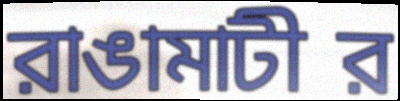
রাঙামাটীর